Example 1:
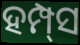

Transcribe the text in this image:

ହମ୍ପ୍‌ସ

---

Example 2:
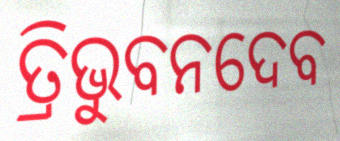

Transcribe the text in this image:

ତ୍ରିଭୁବନଦେବ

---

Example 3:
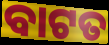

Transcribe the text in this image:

ବାଟତ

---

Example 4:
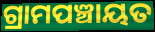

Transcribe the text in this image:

ଗ୍ରାମପଞ୍ଚାୟତ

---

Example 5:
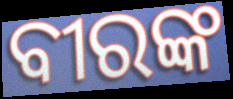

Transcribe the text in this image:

ବୀରଙ୍କ